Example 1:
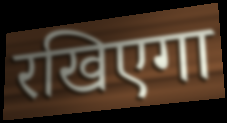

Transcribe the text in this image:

रखिएगा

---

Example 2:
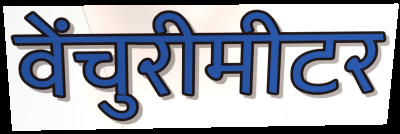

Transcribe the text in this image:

वेंचुरीमीटर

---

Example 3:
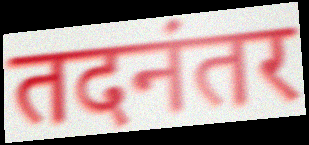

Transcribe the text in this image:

तदनंतर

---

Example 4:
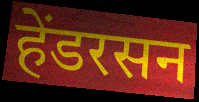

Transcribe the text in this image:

हेंडरसन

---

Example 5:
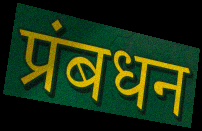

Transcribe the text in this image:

प्रंबधन